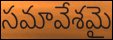
సమావేశమై